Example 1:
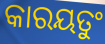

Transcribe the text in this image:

କାରୟତୁଂ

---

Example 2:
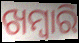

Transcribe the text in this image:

ଖମ୍ୱାରି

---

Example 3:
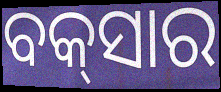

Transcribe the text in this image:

ବକ୍‌ସାର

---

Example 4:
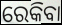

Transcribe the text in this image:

ରେକିବା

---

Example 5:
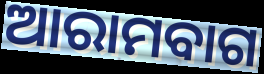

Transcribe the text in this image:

ଆରାମବାଗ